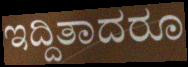
ಇದ್ದಿತಾದರೂ